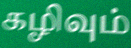
கழிவும்